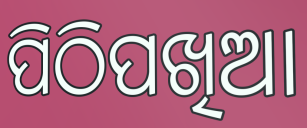
ପିଠିପଖିଆ